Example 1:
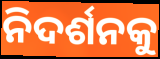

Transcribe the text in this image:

ନିଦର୍ଶନକୁ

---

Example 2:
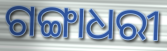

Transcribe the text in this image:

ଗଙ୍ଗାଧରୀ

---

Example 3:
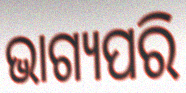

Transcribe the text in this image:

ଭାଗ୍ୟପରି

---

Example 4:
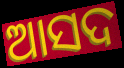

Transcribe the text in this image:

ଆସଦ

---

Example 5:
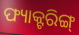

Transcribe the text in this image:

ଫ୍ୟାକ୍ଟରିଙ୍ଗ୍